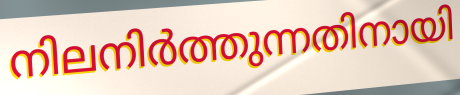
നിലനിർത്തുന്നതിനായി